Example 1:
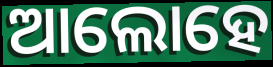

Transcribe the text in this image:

ଆଲୋହେ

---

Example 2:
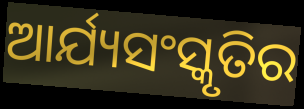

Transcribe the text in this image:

ଆର୍ଯ୍ୟସଂସ୍କୃତିର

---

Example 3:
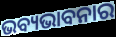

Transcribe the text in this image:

ଭବ୍ୟଭାବନାର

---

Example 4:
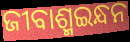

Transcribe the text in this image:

ଜୀବାଶ୍ମଇନ୍ଧନ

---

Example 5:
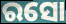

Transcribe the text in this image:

ରସୋ